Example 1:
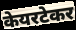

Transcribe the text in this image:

केयरटेकर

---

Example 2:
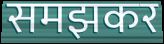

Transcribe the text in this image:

समझकर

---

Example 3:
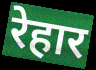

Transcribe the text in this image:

रेहार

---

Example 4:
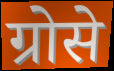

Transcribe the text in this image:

ग्रोसे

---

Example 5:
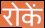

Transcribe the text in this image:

रोकें